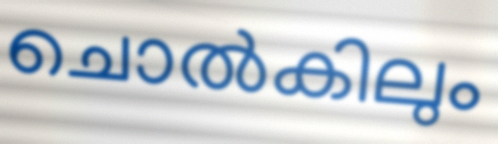
ചൊൽകിലും